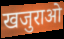
खजुराओ